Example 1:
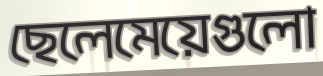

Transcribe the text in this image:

ছেলেমেয়েগুলো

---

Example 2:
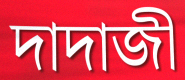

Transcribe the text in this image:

দাদাজী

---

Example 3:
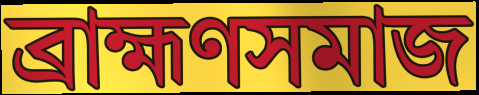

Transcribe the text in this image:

ব্রাহ্মণসমাজ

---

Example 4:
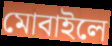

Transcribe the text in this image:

মোবাইলে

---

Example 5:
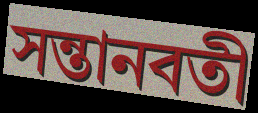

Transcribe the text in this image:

সন্তানবতী